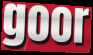
goor